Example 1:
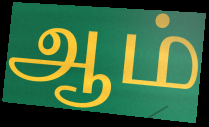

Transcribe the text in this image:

ஆம்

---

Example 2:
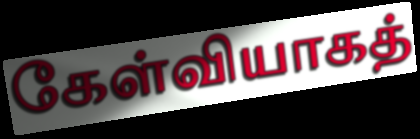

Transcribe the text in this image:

கேள்வியாகத்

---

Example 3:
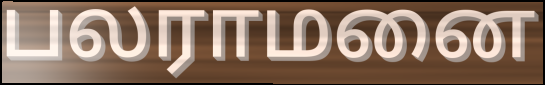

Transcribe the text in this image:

பலராமனை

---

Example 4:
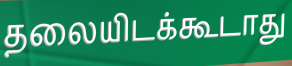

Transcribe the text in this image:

தலையிடக்கூடாது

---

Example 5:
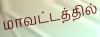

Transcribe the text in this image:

மாவட்டத்தில்